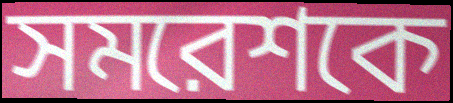
সমরেশকে